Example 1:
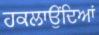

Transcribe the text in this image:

ਹਕਲਾਉਂਦਿਆਂ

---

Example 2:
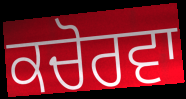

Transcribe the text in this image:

ਕਚੋਰਵਾ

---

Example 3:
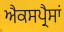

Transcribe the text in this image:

ਐਕਸਪ੍ਰੈਸਾਂ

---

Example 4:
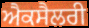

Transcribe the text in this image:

ਐਕਸੈਲਰੀ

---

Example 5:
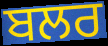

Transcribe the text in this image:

ਬਲਰ